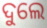
ଦୁଲେ